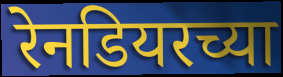
रेनडियरच्या